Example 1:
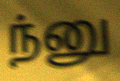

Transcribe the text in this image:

ந்னு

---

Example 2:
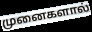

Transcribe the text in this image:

முனைகளால்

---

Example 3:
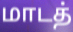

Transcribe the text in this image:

மாடத்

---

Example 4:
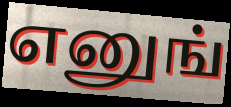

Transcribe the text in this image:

எனுங்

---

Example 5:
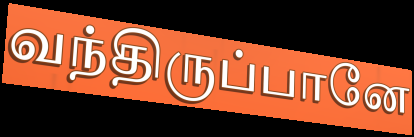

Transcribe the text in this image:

வந்திருப்பானே